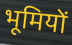
भूमियों